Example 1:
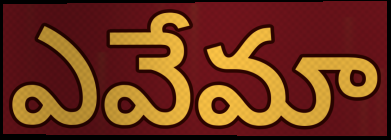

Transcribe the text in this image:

ఎవేమా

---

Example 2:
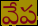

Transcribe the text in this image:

వేప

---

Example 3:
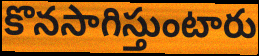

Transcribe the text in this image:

కొనసాగిస్తుంటారు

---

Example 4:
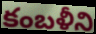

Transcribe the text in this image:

కంబళీని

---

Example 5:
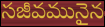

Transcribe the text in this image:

సజీవమునైన